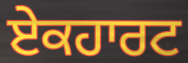
ਏਕਹਾਰਟ